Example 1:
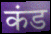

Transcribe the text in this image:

कंड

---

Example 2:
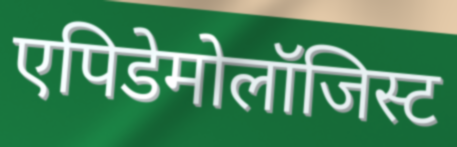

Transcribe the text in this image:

एपिडेमोलॉजिस्ट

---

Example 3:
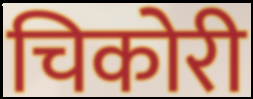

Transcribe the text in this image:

चिकोरी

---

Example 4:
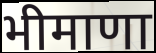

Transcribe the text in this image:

भीमाणा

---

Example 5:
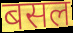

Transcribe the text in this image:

बसल